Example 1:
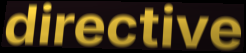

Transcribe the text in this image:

directive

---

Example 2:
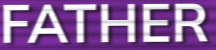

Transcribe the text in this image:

FATHER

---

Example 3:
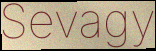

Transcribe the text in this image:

Sevagy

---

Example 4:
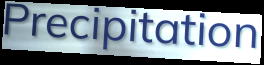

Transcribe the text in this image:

Precipitation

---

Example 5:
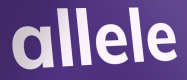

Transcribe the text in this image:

allele